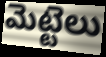
మెట్టెలు